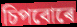
চিপবোৰে